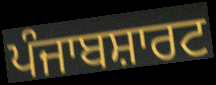
ਪੰਜਾਬਸ਼ਾਰਟ